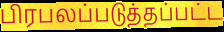
பிரபலப்படுத்தப்பட்ட